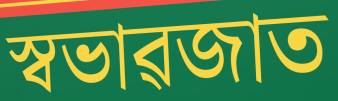
স্বভাৱজাত